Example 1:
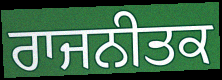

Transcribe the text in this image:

ਰਾਜਨੀਤਕ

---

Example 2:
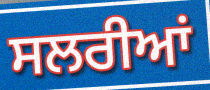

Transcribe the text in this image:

ਸਲਰੀਆਂ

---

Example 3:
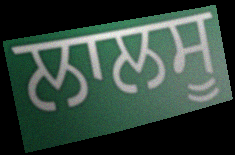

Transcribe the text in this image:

ਲਾਲਸੂ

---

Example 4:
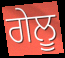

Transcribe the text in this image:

ਗੇਲੂ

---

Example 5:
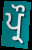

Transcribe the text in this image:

ਪ੍ਰੌ